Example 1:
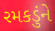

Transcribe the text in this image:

રમકડુંને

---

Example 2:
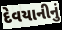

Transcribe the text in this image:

દેવયાનીનું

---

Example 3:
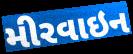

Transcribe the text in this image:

મીરવાઇન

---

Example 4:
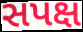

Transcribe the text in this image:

સપક્ષ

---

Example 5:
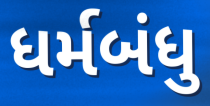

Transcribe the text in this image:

ધર્મબંધુ